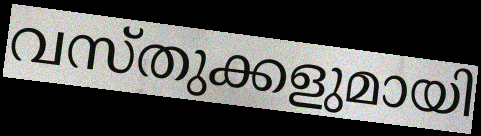
വസ്തുക്കളുമായി